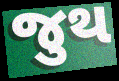
જુથ